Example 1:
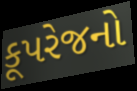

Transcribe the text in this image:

કૂપરેજનો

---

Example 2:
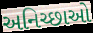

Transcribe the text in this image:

અનિચ્છાઓ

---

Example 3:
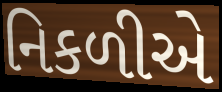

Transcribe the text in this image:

નિકળીએ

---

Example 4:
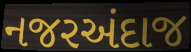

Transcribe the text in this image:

નજરઅંદાજ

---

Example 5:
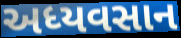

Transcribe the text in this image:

અધ્યવસાન